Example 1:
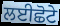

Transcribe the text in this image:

ਲਈਛੋਟੇ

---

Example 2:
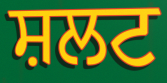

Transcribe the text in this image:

ਸ਼ਲਟ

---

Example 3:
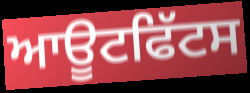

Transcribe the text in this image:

ਆਊਟਫਿੱਟਸ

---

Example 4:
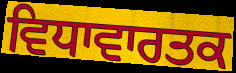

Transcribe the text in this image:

ਵਿਧਾਵਾਰਤਕ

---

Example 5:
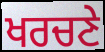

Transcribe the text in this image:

ਖਰਚਣੇ